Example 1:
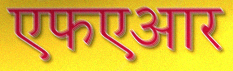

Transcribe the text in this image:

एफएआर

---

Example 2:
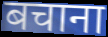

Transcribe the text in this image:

बचाना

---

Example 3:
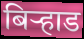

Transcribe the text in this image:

बिर्‍हाड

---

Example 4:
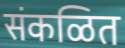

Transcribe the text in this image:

संकळित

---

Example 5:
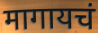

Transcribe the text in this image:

मागायचं